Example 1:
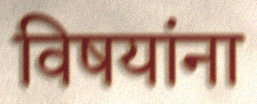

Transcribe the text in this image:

विषयांना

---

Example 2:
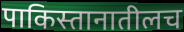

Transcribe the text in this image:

पाकिस्तानातीलच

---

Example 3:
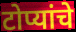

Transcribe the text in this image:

टोप्यांचे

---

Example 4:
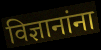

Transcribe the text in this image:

विज्ञानांना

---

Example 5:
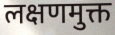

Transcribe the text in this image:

लक्षणमुक्त